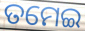
ତମେଇ